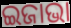
ଇଜାଭା